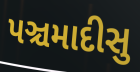
પઞ્ચમાદીસુ